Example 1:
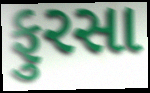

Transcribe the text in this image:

ફુરસા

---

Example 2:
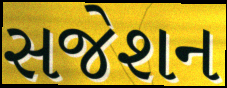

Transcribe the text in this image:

સજેશન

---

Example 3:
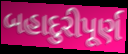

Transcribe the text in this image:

બહાદુરીપૂર્ણ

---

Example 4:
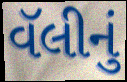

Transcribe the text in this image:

વૅલીનું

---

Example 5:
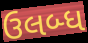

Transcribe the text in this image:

ઉલબ્ધ